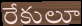
రేకులూ